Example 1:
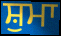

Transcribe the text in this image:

ਸ਼ੁਮਾ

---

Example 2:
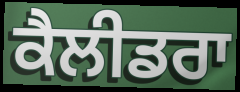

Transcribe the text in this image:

ਕੈਲੀਡਰਾ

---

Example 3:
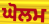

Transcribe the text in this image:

ਘੋਲਮ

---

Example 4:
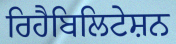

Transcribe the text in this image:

ਰਿਹੈਬਿਲਿਟੇਸ਼ਨ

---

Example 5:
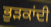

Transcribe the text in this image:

ਭੁੜਕਾਂਦੀ